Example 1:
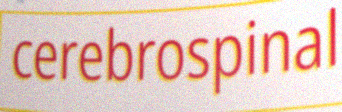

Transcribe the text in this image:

cerebrospinal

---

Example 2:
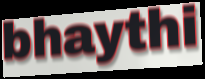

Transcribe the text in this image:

bhaythi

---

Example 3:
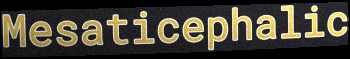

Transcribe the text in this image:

Mesaticephalic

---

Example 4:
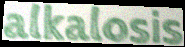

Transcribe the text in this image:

alkalosis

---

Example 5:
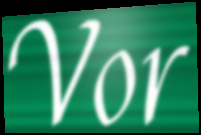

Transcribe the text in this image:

Vor